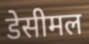
डेसीमल